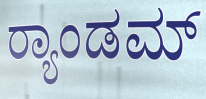
ರ್‍ಯಾಂಡಮ್